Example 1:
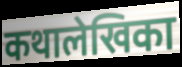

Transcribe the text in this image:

कथालेखिका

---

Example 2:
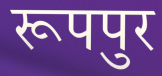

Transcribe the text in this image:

रूपपुर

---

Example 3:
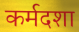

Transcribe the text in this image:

कर्मदशा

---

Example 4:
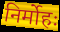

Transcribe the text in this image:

निर्मोहः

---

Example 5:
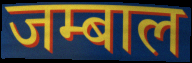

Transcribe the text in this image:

जम्बाल